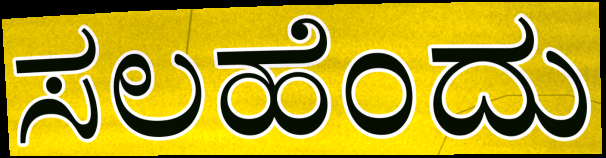
ಸಲಹೆಂದು